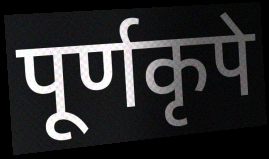
पूर्णकृपे